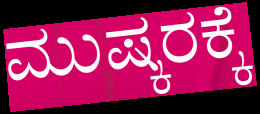
ಮುಷ್ಕರಕ್ಕೆ